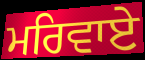
ਮਰਿਵਾਏ